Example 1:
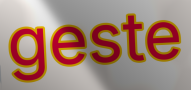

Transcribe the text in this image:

geste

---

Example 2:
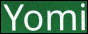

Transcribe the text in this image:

Yomi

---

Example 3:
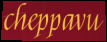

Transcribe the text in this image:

cheppavu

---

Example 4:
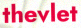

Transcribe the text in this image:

thevlet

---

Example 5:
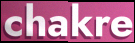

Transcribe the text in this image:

chakre